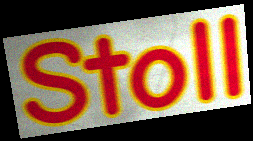
Stoll